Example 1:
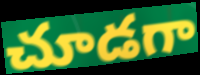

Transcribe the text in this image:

చూడగా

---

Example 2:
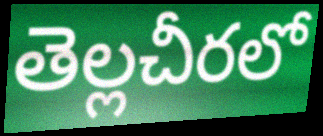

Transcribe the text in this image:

తెల్లచీరలో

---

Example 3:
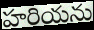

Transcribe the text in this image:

హరియను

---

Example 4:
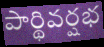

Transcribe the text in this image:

పార్థివర్షభ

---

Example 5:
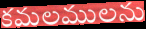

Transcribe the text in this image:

కమలములను